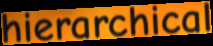
hierarchical